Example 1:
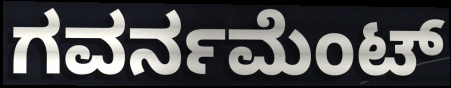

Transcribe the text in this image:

ಗವರ್ನಮೆಂಟ್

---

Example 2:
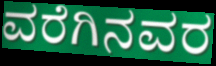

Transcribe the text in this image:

ವರೆಗಿನವರ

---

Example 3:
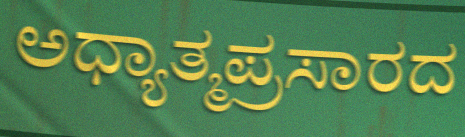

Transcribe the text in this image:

ಅಧ್ಯಾತ್ಮಪ್ರಸಾರದ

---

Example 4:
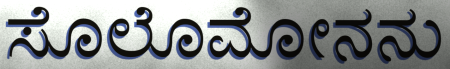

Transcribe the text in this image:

ಸೊಲೊಮೋನನು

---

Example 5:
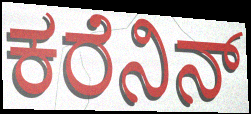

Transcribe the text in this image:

ಕರೆನಿನ್